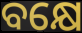
ବକ୍ଷେ